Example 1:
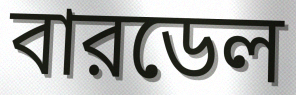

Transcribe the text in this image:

বারডেল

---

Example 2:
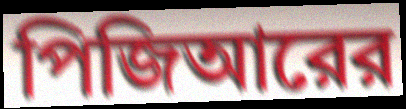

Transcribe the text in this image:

পিজিআরের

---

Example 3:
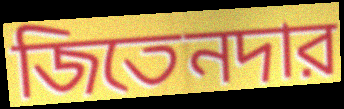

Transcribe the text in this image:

জিতেনদার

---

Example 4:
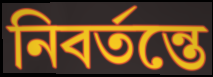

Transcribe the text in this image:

নিবর্তন্তে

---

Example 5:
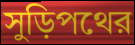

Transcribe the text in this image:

সুড়িপথের